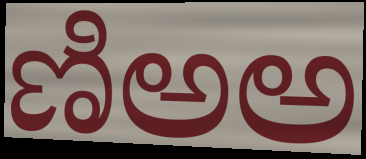
ణిఅఅ